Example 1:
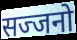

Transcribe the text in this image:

सज्जनो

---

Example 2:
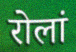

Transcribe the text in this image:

रोलां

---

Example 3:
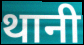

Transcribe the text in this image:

थानी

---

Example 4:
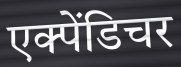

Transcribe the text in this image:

एक्पेंडिचर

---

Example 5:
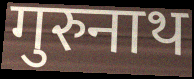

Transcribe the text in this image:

गुरुनाथ